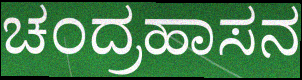
ಚಂದ್ರಹಾಸನ